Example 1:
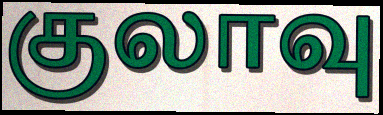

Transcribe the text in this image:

குலாவு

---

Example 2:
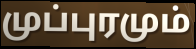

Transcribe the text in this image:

முப்புரமும்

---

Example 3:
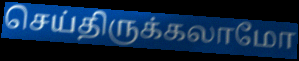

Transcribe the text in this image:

செய்திருக்கலாமோ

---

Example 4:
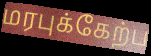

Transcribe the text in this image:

மரபுக்கேற்ப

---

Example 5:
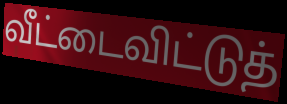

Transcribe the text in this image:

வீட்டைவிட்டுத்